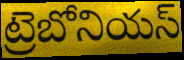
ట్రెబోనియస్